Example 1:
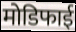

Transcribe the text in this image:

मोडिफाई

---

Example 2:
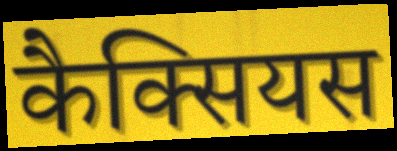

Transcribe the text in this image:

कैक्सियस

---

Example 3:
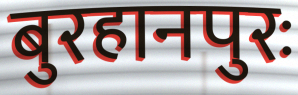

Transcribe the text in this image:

बुरहानपुरः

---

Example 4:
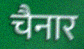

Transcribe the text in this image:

चैनार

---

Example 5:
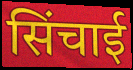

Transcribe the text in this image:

सिंचाई